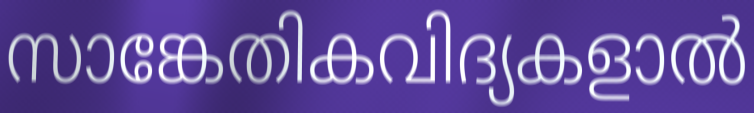
സാങ്കേതികവിദ്യകളാൽ